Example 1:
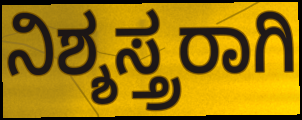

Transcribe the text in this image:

ನಿಶ್ಶಸ್ತ್ರರಾಗಿ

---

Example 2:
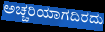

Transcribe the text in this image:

ಅಚ್ಚರಿಯಾಗದಿರದು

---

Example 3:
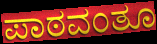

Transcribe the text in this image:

ಪಾಠವಂತೂ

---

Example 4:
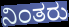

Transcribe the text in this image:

ನಿಂತರು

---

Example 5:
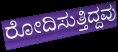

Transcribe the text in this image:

ರೋದಿಸುತ್ತಿದ್ದವು